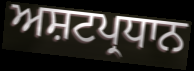
ਅਸ਼ਟਪ੍ਰਧਾਨ